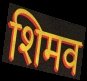
शिमव